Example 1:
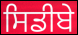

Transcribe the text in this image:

ਸਿਡੀਬੇ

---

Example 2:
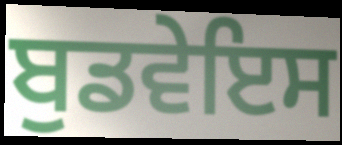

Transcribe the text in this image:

ਬੁਡਵੇਇਸ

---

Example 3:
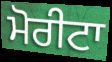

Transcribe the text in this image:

ਮੋਰੀਟਾ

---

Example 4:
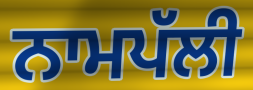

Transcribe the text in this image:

ਨਾਮਪੱਲੀ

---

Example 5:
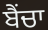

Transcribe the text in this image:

ਬੈਂਚਾ